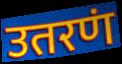
उतरणं